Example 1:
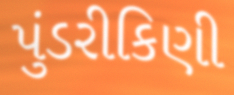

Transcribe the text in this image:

પુંડરીકિણી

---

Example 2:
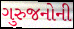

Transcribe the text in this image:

ગુરુજનોની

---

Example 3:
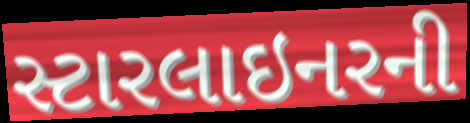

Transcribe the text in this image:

સ્ટારલાઇનરની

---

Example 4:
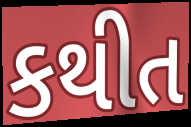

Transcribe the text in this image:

કથીત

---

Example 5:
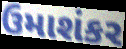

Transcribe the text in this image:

ઉમાશંકર